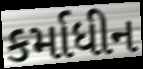
કર્માધીન